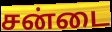
சன்டை